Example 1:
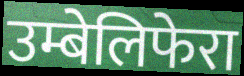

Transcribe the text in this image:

उम्बेलिफेरा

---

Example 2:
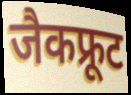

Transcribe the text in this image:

जैकफ्रूट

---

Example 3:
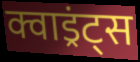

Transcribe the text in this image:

क्वाड्रंट्स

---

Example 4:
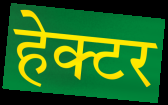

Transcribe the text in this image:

हेक्‍टर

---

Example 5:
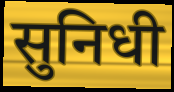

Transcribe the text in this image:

सुनिधी